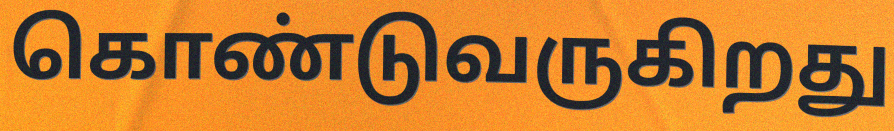
கொண்டுவருகிறது